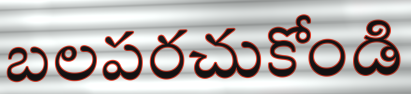
బలపరచుకోండి